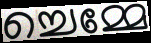
ച്ചെമ്മേ